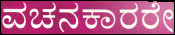
ವಚನಕಾರರೇ